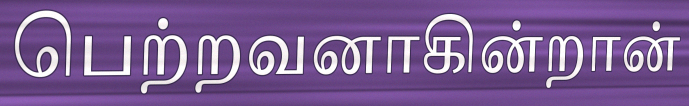
பெற்றவனாகின்றான்